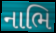
નાભિ